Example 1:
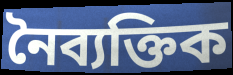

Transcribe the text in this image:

নৈব্যক্তিক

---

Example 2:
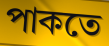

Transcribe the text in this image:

পাকতে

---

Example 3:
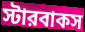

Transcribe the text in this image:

স্টারবাকস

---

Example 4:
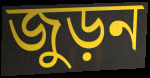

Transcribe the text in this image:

জুড়ন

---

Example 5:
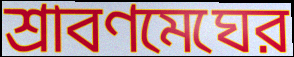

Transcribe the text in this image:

শ্রাবণমেঘের